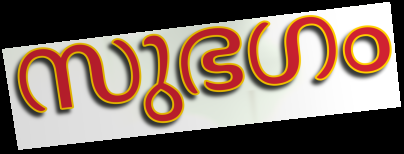
സുഭഗം